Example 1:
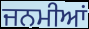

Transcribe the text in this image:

ਜਨਮੀਆਂ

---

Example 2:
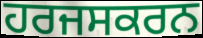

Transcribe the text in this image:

ਹਰਜਸਕਰਨ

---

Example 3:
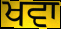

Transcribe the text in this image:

ਖਵਾ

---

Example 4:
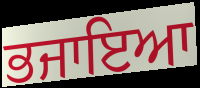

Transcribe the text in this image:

ਭਜਾਇਆ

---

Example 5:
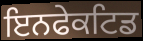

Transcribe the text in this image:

ਇਨਫੇਕਟਿਡ